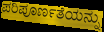
ಪರಿಪೂರ್ಣತೆಯನ್ನು